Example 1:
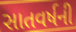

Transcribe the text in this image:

સાતવર્ષની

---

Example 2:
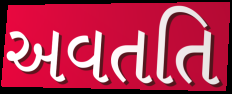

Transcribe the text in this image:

અવતતિ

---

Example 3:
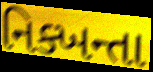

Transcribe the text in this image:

નિક્ખન્તા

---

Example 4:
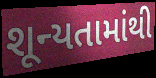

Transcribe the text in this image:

શૂન્યતામાંથી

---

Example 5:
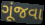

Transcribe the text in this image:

ગૂંજવા